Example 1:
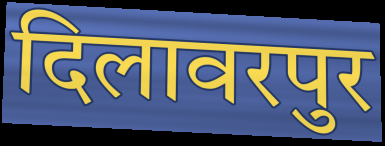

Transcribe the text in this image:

दिलावरपुर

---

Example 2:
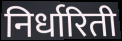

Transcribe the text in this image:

निर्धारिती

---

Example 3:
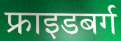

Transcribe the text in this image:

फ्राइडबर्ग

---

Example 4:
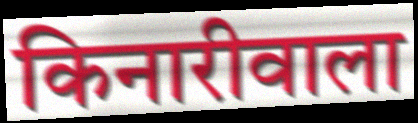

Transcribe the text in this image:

किनारीवाला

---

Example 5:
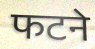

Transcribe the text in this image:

फटने